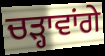
ਚੜ੍ਹਾਵਾਂਗੇ